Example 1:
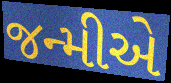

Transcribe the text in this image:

જન્મીએ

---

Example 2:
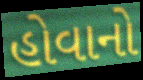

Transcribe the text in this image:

હોવાનો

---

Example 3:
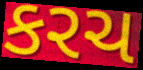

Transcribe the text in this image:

કરચ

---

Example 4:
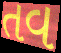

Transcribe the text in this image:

તવ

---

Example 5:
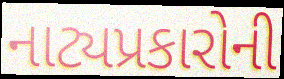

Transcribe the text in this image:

નાટ્યપ્રકારોની